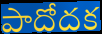
పాదోదక